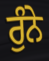
ਰੁੰਨੇ